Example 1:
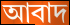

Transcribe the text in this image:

আবাদ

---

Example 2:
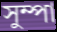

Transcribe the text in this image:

সুম্পা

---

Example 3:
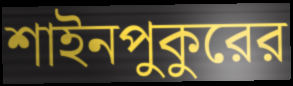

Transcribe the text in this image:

শাইনপুকুরের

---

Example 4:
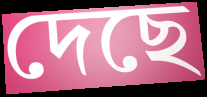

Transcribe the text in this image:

দেছে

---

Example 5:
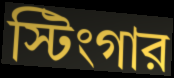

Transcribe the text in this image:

স্টিংগার